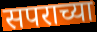
सपराच्या